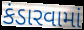
કંડારવામાં